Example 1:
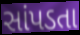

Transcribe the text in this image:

સાંપડતા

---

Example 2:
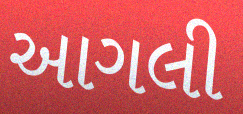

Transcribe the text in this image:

આગલી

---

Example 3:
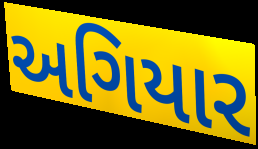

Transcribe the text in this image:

અગિયાર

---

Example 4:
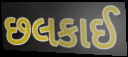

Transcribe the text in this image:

છલકાઈ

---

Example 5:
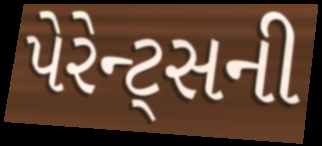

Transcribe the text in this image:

પેરેન્ટ્સની